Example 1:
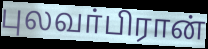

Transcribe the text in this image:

புலவர்பிரான்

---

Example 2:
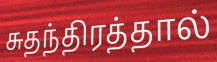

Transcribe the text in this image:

சுதந்திரத்தால்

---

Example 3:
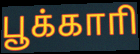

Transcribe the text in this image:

பூக்காரி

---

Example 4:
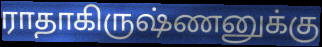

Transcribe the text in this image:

ராதாகிருஷ்ணனுக்கு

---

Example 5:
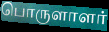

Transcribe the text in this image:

பொருளாளர்